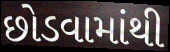
છોડવામાંથી